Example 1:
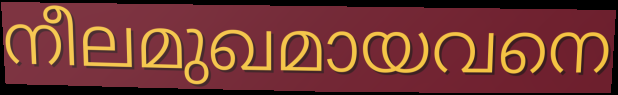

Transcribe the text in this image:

നീലമുഖമായവനെ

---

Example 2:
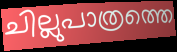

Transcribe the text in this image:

ചില്ലുപാത്രത്തെ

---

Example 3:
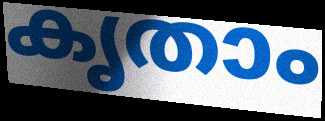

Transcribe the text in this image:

കൃതാം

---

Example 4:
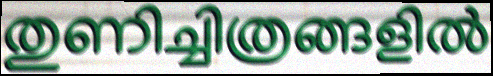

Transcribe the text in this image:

തുണിച്ചിത്രങ്ങളിൽ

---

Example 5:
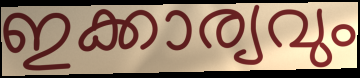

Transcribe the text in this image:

ഇക്കാര്യവും